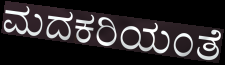
ಮದಕರಿಯಂತೆ